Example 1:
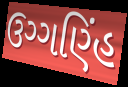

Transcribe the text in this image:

ઉગ્ગણ્હિં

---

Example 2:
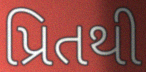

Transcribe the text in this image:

પ્રિતથી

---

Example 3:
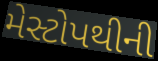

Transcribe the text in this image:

મેસ્ટોપથીની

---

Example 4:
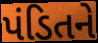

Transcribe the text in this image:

પંડિતને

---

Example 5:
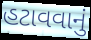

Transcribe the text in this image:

હટાવવાનું